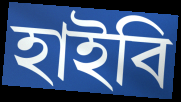
হাইবি